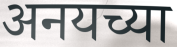
अनयच्या